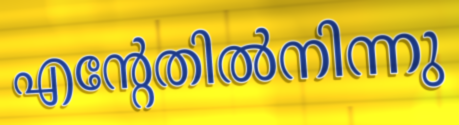
എന്റേതിൽനിന്നു